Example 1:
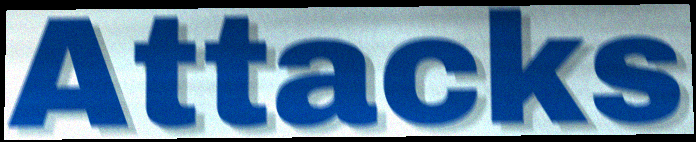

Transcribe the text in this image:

Attacks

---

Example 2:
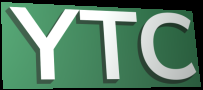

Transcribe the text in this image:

YTC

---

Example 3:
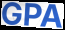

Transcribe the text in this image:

GPA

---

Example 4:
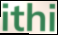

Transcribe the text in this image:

ithi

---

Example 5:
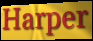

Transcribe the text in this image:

Harper